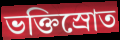
ভক্তিস্রোত